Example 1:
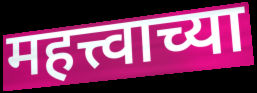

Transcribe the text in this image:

महत्त्वाच्या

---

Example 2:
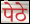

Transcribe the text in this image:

पेठे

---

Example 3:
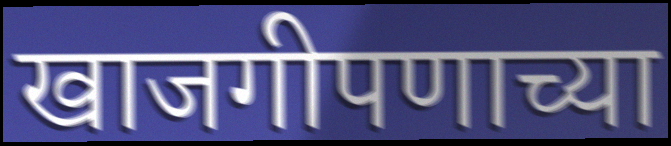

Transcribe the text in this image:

खाजगीपणाच्या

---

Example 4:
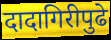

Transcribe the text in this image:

दादागिरीपुढे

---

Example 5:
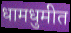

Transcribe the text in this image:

धामधुमीत